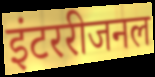
इंटररीजनल